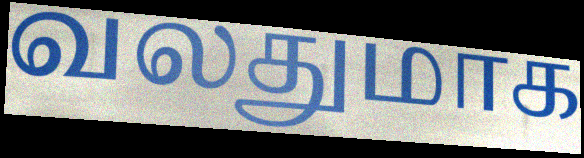
வலதுமாக